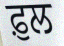
ਫ਼ੁਲ